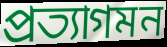
প্রত্যাগমন